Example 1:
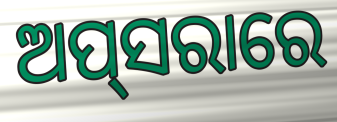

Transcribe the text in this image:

ଅପ୍‌ସରାରେ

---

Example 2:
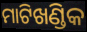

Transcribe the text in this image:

ମାଟିଖଣ୍ଡିକ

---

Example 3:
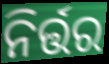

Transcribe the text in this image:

ନିର୍ତ୍ତର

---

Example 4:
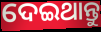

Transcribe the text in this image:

ଦେଇଥାନ୍ତୁ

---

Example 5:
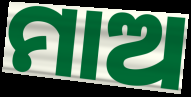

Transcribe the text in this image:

ମାଅ